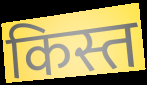
किस्त